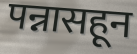
पन्नासहून